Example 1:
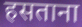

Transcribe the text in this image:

हसताना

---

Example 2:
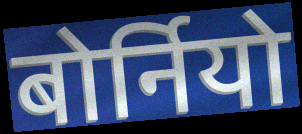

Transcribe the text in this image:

बोर्नियो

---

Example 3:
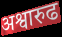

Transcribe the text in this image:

अश्वारुढ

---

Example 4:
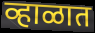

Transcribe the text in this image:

व्हाळात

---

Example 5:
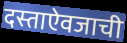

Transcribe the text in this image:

दस्ताऐवजाची